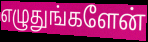
எழுதுங்களேன்